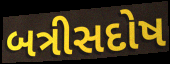
બત્રીસદોષ